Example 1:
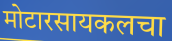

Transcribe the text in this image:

मोटारसायकलचा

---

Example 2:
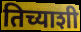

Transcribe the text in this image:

तिच्याशी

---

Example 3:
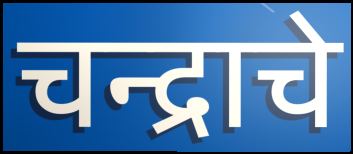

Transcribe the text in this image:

चन्द्राचे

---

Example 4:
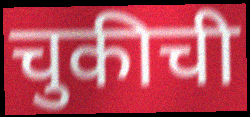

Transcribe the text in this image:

चुकीची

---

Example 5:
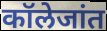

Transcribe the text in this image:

कॉलेजांत